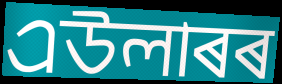
এউলাৰৰ